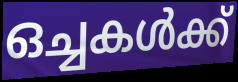
ഒച്ചകൾക്ക്